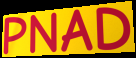
PNAD